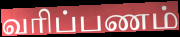
வரிப்பணம்